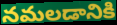
నమలడానికి